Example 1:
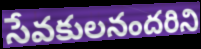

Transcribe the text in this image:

సేవకులనందరిని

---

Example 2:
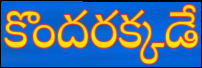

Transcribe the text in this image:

కొందరక్కడే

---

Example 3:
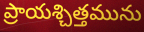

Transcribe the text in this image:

ప్రాయశ్చిత్తమును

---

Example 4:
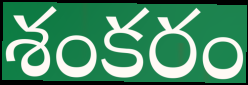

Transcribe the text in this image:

శంకరం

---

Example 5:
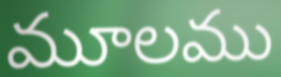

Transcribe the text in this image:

మూలము